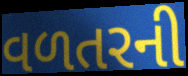
વળતરની